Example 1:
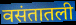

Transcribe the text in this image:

वसंतातली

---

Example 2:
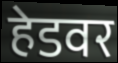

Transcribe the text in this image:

हेडवर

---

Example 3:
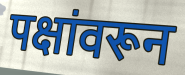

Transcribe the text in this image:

पक्षांवरून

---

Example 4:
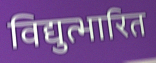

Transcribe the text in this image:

विद्युत्भारित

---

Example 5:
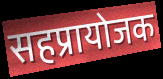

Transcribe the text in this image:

सहप्रायोजक